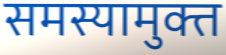
समस्यामुक्त